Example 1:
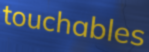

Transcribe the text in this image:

touchables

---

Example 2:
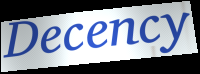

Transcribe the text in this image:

Decency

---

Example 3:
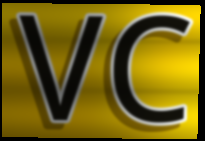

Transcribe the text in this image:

VC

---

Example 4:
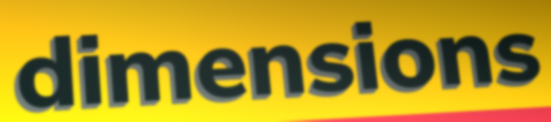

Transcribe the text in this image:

dimensions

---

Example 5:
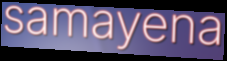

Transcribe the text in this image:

samayena